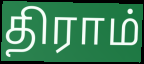
திராம்